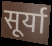
सूर्या